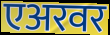
एअरवर